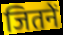
जितनें